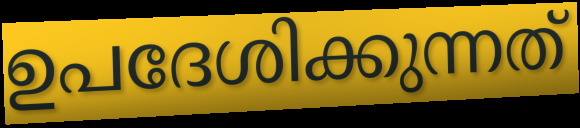
ഉപദേശിക്കുന്നത്